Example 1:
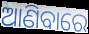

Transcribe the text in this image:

ଆଣିବାରେ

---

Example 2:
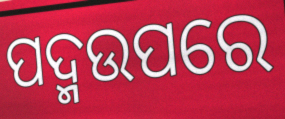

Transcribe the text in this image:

ପଦ୍ମଉପରେ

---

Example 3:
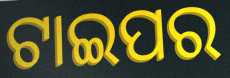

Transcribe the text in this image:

ଟାଇପର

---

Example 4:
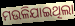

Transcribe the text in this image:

ମଉଳିଯାଇଥିଲା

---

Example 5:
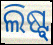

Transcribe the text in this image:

ଲିଷ୍ଟ୍